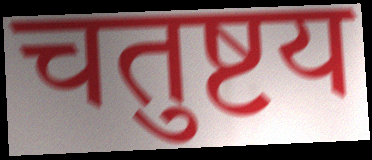
चतुष्टय